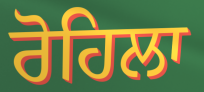
ਰੋਹਿਲਾ